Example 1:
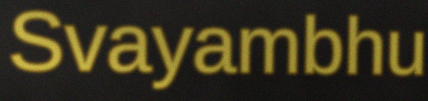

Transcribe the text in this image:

Svayambhu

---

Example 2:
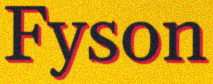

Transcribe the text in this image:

Fyson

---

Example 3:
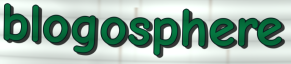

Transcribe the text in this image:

blogosphere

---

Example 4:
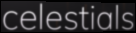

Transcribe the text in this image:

celestials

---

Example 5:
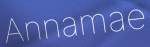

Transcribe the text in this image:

Annamae